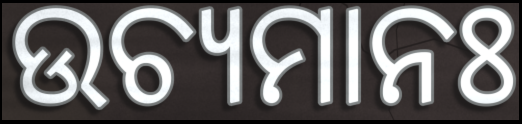
ଉଚ୍ୟମାନଃ